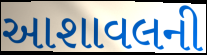
આશાવલની